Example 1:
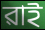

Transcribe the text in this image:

ৱাই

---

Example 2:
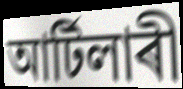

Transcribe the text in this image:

আৰ্টিলাৰী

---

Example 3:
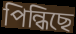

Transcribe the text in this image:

পিন্ধিছে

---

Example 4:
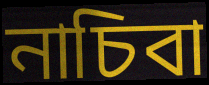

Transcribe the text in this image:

নাচিবা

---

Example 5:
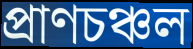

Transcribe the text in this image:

প্ৰাণচঞ্চল